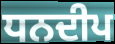
ਧਨਦੀਪ